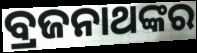
ବ୍ରଜନାଥଙ୍କର